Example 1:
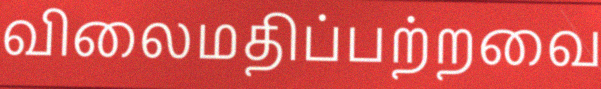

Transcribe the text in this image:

விலைமதிப்பற்றவை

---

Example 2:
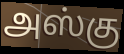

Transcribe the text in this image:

அஸ்கு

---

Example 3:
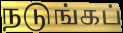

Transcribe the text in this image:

நடுங்கப்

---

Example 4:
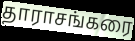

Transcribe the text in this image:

தாராசங்கரை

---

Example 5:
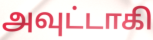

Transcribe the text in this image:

அவுட்டாகி